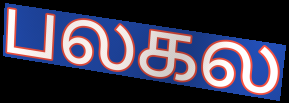
பலகல